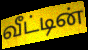
வீட்டின்